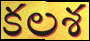
కలశ